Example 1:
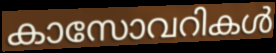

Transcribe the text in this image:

കാസോവറികൾ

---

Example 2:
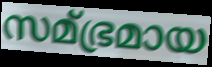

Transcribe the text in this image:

സമ്ഭ്രമായ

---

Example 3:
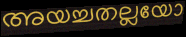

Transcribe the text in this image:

അയച്ചതല്ലയോ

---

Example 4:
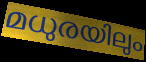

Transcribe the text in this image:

മധുരയിലും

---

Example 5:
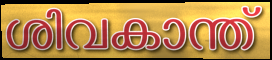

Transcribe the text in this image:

ശിവകാന്ത്